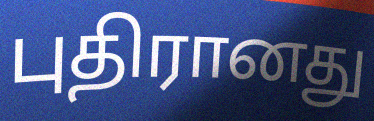
புதிரானது